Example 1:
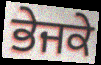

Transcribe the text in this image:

ਭੇਜਕੇ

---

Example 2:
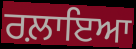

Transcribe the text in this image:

ਰਲ਼ਾਇਆ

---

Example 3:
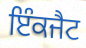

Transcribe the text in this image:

ਇੰਕਜੈਟ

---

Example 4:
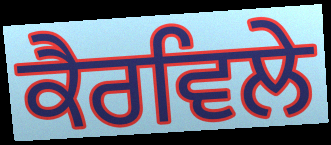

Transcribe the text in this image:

ਕੈਰਵਿਲੇ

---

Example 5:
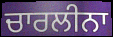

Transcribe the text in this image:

ਚਾਰਲੀਨਾ